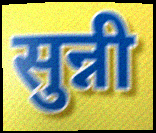
सुन्नी